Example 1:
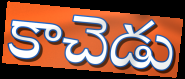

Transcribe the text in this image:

కాచెడు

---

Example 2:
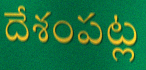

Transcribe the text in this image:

దేశంపట్ల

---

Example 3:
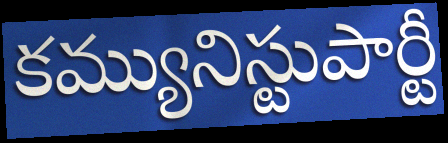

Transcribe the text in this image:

కమ్యునిస్టుపార్టీ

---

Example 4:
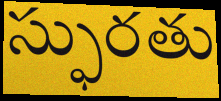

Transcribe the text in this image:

స్ఫురతు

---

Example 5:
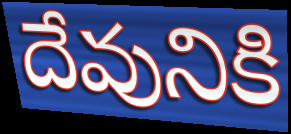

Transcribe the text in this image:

దేవునికి